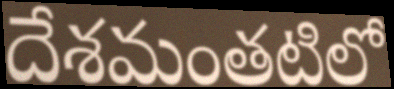
దేశమంతటిలో